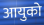
आयुको